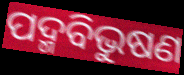
ପଦ୍ମବିଭୁଷଣ